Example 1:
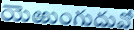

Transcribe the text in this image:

యెఱుంగుదువో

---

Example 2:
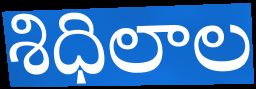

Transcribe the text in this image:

శిధిలాల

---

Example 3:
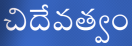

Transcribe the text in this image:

చిదేవత్వం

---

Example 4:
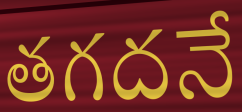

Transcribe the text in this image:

తగదనే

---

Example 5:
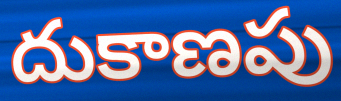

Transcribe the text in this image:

దుకాణపు